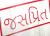
જસપ્રિત